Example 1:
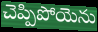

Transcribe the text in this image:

చెప్పిపోయెను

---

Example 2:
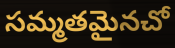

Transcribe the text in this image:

సమ్మతమైనచో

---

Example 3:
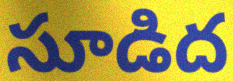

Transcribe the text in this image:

సూడిద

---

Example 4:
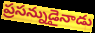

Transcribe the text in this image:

ప్రసన్నుడైనాడు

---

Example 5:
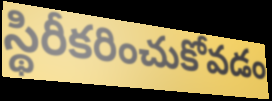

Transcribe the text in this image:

స్థిరీకరించుకోవడం